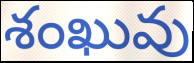
శంఖువు